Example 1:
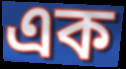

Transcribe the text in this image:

এক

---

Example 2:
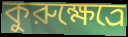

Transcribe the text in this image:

কুরুক্ষেত্রে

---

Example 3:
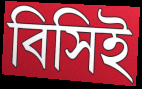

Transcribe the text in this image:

বিসিই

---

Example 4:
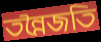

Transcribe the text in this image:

তন্নৈজতি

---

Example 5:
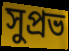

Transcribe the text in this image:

সুপ্রভ